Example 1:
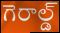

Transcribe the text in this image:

గెరాల్డ్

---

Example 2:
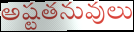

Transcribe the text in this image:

అష్టతనువులు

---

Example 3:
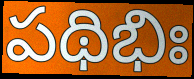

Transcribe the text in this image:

పథిభిః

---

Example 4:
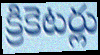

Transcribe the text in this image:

క్రికెటర్లు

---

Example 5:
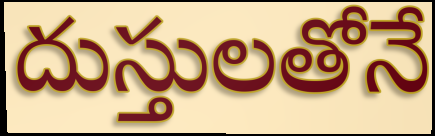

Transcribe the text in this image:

దుస్తులతోనే